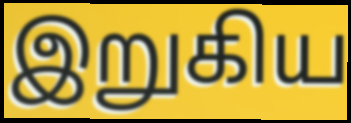
இறுகிய